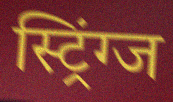
स्ट्रिंग्ज